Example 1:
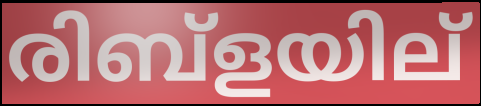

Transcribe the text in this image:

രിബ്ളയില്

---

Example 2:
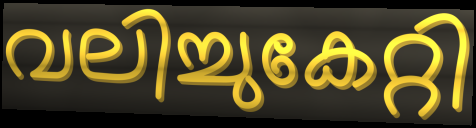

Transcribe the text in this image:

വലിച്ചുകേറ്റി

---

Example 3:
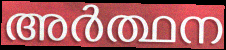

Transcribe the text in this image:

അർത്ഥന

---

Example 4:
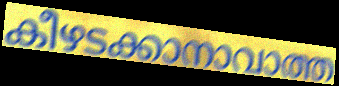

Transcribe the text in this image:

കീഴടക്കാനാവാത്ത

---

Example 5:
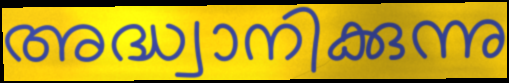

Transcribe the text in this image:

അദ്ധ്വാനിക്കുന്നു